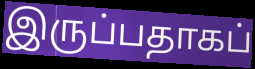
இருப்பதாகப்